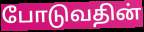
போடுவதின்